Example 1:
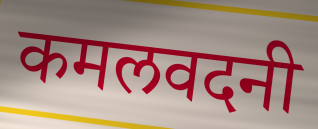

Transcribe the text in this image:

कमलवदनी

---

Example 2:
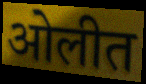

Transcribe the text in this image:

ओलीत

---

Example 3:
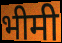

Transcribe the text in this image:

भीमी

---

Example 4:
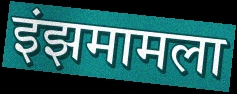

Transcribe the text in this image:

इंझमामला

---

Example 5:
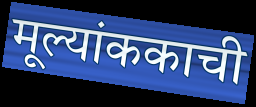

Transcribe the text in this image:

मूल्यांककाची